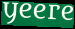
yeere